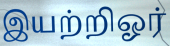
இயற்றிஓர்